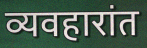
व्यवहारांत